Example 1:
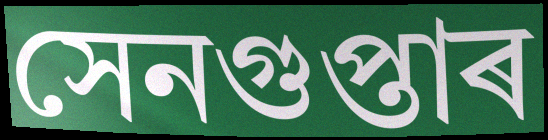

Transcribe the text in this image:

সেনগুপ্তাৰ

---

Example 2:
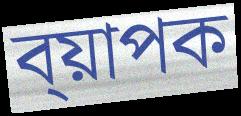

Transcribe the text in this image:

ব্য়াপক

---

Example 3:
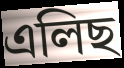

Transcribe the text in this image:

এলিছ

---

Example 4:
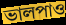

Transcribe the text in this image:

ভালপাও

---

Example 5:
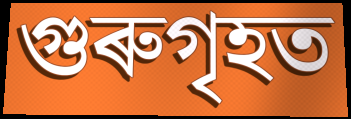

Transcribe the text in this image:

গুৰুগৃহত